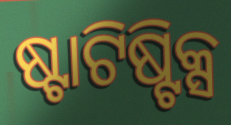
ଷ୍ଟାଟିଷ୍ଟିକ୍ସ